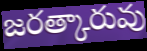
జరత్కారువు